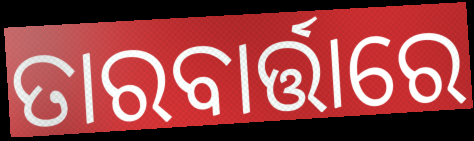
ତାରବାର୍ତ୍ତାରେ